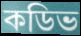
কডিভ